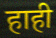
हाही